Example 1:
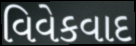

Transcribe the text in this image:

વિવેકવાદ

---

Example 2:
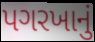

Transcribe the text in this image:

પગરખાનું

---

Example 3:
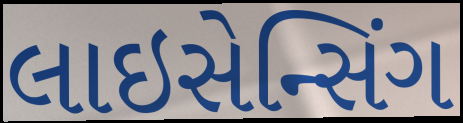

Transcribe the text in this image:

લાઇસેન્સિંગ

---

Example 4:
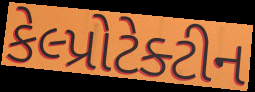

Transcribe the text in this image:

કેલ્પ્રોટેક્ટીન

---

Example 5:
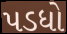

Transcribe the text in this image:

પડધો